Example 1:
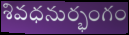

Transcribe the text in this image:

శివధనుర్భంగం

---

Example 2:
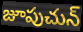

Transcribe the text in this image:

జూపుచున్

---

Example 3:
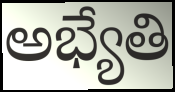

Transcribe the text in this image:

అభ్యేతి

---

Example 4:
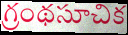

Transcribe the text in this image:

గ్రంథసూచిక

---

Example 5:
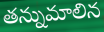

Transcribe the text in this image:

తన్నుమాలిన